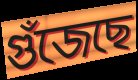
গুঁজেছে